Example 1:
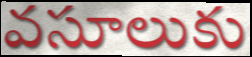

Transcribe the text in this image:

వసూలుకు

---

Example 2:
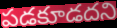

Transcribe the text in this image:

పడకూడదని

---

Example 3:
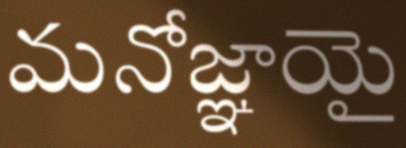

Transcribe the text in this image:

మనోజ్ఞాయై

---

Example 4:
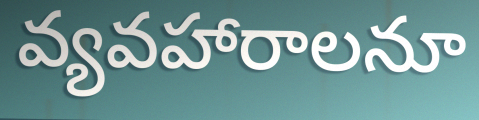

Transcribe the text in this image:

వ్యవహారాలనూ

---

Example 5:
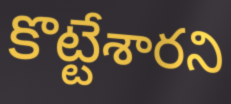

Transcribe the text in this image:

కొట్టేశారని